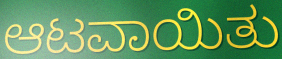
ಆಟವಾಯಿತು